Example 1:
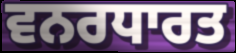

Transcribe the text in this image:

ਵਨਰਧਾਰਤ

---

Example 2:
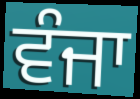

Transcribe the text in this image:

ਵੰਜਾ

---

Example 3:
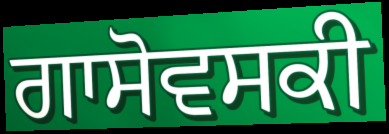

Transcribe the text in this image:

ਗਾਸੋਵਸਕੀ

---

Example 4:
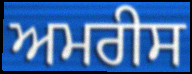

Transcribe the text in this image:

ਅਮਰੀਸ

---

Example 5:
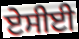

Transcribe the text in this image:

ਏਸੀਈ